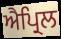
ਐਪ੍ਰਿਲ